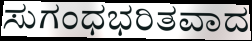
ಸುಗಂಧಭರಿತವಾದ